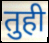
तुही